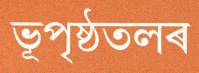
ভূপৃষ্ঠতলৰ